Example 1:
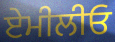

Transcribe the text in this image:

ਏਮੀਲੀਓ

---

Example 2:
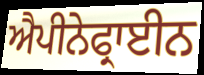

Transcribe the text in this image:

ਐਪੀਨੇਫ੍ਰਾਈਨ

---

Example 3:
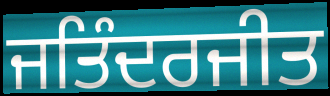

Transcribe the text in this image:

ਜਤਿੰਦਰਜੀਤ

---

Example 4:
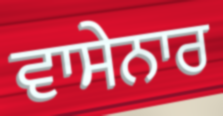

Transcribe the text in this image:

ਵਾਸੇਨਾਰ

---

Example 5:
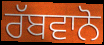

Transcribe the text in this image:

ਰੱਬਵਾਨੋ